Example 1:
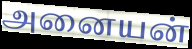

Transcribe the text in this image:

அனையன்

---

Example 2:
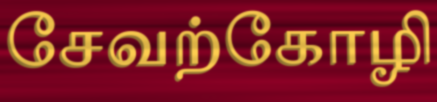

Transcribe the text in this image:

சேவற்கோழி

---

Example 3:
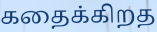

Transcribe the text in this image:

கதைக்கிறத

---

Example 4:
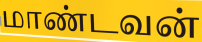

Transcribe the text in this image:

மாண்டவன்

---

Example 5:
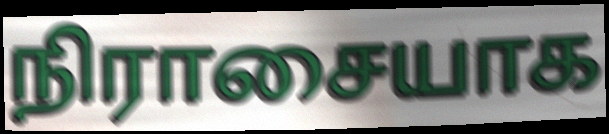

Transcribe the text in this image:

நிராசையாக